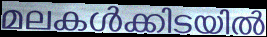
മലകൾക്കിടയിൽ